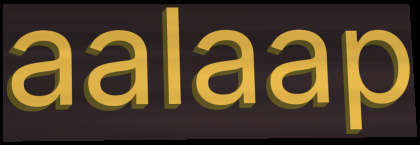
aalaap